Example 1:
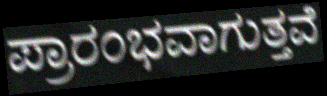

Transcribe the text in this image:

ಪ್ರಾರಂಭವಾಗುತ್ತವೆ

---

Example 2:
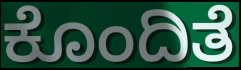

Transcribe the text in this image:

ಕೊಂದಿತೆ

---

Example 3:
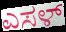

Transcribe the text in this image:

ಎಸಳ್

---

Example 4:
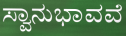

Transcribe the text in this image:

ಸ್ವಾನುಭಾವವೆ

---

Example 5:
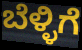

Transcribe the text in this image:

ಬೆಳ್ಳಿಗೆ